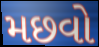
મછવો